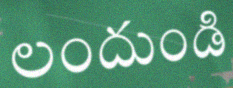
లందుండి